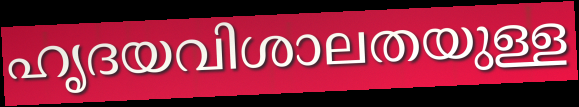
ഹൃദയവിശാലതയുള്ള